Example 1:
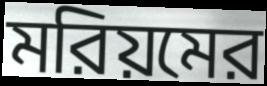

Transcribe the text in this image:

মরিয়মের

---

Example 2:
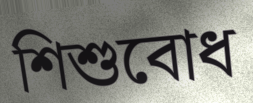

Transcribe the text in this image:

শিশুবোধ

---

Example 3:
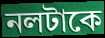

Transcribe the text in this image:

নলটাকে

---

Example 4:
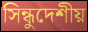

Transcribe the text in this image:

সিন্ধুদেশীয়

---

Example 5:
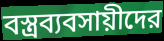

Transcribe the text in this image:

বস্ত্রব্যবসায়ীদের